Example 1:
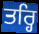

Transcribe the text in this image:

ਤਰ੍ਹਿ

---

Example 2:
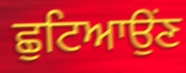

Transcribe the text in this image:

ਛੁਟਿਆਉਂਣ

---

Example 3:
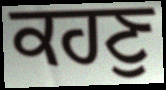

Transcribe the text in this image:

ਕਹਣੁ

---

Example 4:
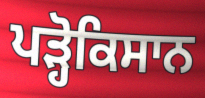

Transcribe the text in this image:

ਪੜ੍ਹੋਕਿਸਾਨ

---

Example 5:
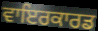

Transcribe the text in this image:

ਵਾਇਰਕਾਰਡ